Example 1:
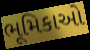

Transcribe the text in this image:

ભૂમિકાઓ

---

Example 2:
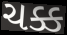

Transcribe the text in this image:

ચક્ક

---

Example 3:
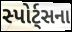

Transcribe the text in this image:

સ્પોર્ટ્સના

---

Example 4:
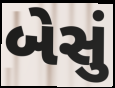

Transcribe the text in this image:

બેસું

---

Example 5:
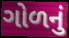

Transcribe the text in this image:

ગોળનું